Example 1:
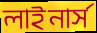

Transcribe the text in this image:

লাইনার্স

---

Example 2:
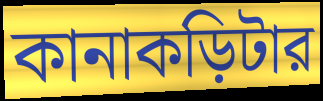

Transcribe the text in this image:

কানাকড়িটার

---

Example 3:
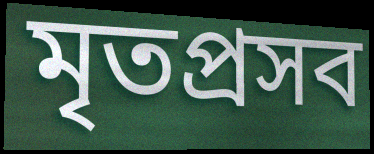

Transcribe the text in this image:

মৃতপ্রসব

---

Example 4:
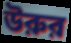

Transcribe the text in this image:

উরুর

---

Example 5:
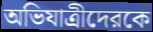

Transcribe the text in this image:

অভিযাত্রীদেরকে